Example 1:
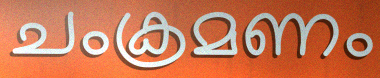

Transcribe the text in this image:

ചംക്രമണം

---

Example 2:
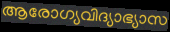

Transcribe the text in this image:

ആരോഗ്യവിദ്യാഭ്യാസ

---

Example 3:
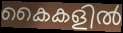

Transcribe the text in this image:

കൈകളിൽ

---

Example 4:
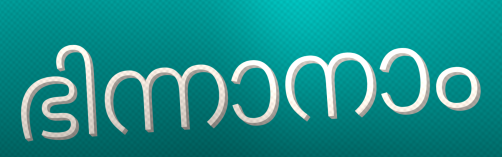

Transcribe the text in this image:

ഭിന്നാനാം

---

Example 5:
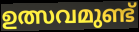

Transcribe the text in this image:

ഉത്സവമുണ്ട്